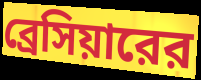
ব্রেসিয়ারের